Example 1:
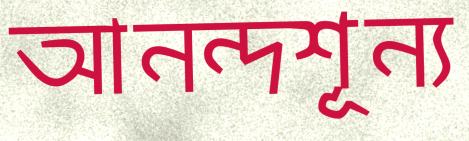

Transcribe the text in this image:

আনন্দশূন্য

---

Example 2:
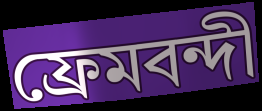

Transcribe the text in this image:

ফ্রেমবন্দী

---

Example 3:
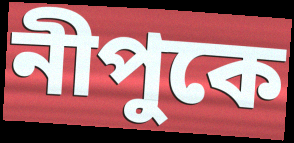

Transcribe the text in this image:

নীপুকে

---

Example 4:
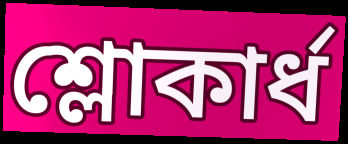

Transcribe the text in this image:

শ্লোকার্ধ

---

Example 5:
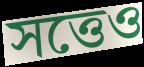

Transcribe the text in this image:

সত্তেও